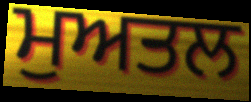
ਮੁਅਤਲ